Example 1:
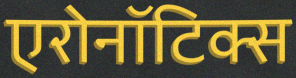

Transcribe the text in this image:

एरोनॉटिक्स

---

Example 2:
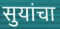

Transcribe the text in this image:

सुयांचा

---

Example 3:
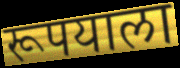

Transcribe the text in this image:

रूपयाला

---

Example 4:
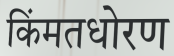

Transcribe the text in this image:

किंमतधोरण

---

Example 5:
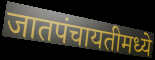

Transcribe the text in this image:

जातपंचायतीमध्ये